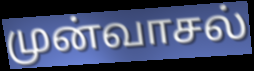
முன்வாசல்